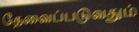
தேவைப்படுவதும்